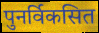
पुनर्विकसित